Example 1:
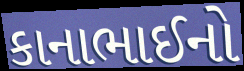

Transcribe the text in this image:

કાનાભાઈનો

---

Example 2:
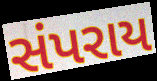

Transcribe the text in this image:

સંપરાય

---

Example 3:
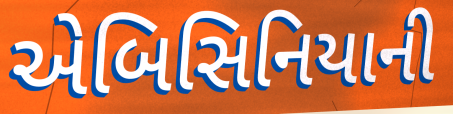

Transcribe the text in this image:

એબિસિનિયાની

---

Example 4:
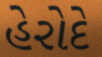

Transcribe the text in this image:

હેરોદે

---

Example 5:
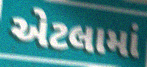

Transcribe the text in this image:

એટલામાં